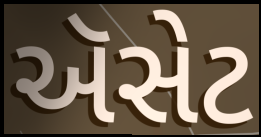
ઍસેટ